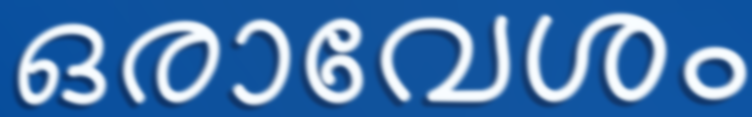
ഒരാവേശം